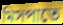
মিসপাতে